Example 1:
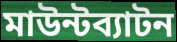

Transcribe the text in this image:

মাউন্টব্যাটন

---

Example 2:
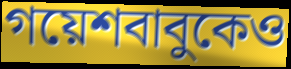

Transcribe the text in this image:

গয়েশবাবুকেও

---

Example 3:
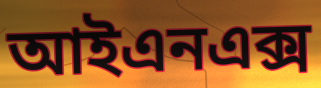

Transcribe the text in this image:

আইএনএক্স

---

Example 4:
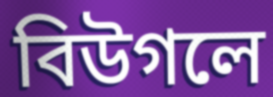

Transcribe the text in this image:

বিউগলে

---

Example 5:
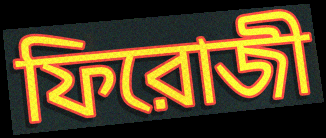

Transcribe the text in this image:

ফিরোজী